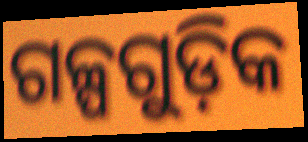
ଗଳ୍ପଗୁଡ଼ିକ